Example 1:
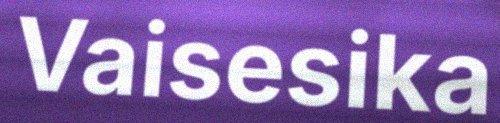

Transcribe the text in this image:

Vaisesika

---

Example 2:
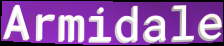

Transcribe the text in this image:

Armidale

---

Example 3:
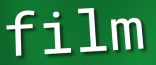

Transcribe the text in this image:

film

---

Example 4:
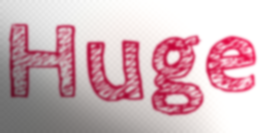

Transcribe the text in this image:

Huge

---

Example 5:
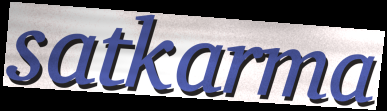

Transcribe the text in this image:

satkarma